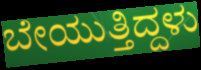
ಬೇಯುತ್ತಿದ್ದಳು